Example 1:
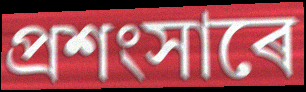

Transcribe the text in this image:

প্ৰশংসাৰে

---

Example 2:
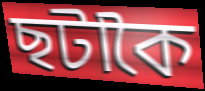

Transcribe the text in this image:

ছটাকৈ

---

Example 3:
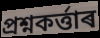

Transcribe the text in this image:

প্ৰশ্নকৰ্ত্তাৰ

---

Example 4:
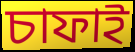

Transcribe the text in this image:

চাফাই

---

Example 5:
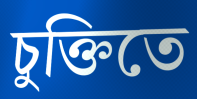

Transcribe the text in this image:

চুক্তিতে